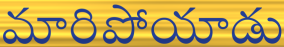
మారిపోయాడు